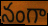
నంగా